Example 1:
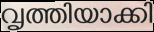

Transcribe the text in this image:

വൃത്തിയാക്കി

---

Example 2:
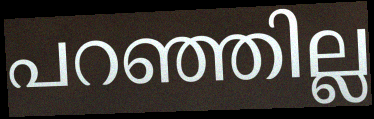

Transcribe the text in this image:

പറഞ്ഞില്ല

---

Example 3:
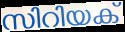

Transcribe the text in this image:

സിറിയക്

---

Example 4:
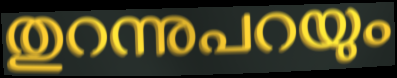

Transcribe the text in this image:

തുറന്നുപറയും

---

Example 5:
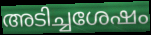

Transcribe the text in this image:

അടിച്ചശേഷം